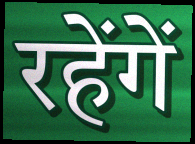
रहेंगें